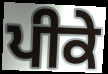
ਪੀਕੇ